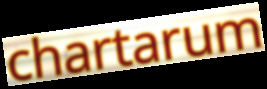
chartarum